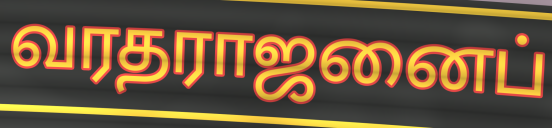
வரதராஜனைப்